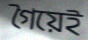
গৈয়েই